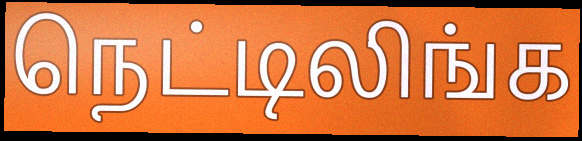
நெட்டிலிங்க